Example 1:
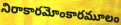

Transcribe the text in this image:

నిరాకారమోంకారమూలం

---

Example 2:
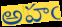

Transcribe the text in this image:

అహఁ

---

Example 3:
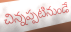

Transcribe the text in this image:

చిన్నప్పటినుండే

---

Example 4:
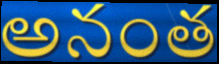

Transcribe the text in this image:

అనంత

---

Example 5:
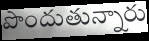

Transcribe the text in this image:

పొందుతున్నారు